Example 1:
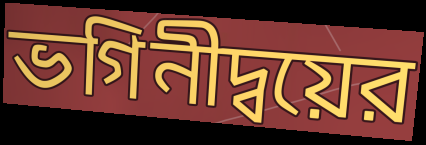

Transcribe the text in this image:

ভগিনীদ্বয়ের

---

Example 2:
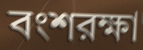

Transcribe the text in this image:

বংশরক্ষা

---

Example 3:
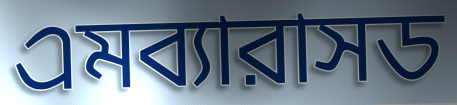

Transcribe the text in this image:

এমব্যারাসড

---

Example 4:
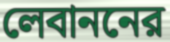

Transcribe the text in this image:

লেবাননের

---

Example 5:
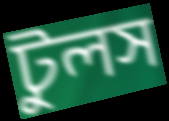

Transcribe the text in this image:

টুলস